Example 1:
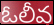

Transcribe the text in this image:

ఓలీవ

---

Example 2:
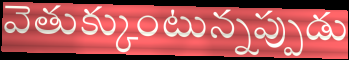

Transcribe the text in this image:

వెతుక్కుంటున్నప్పుడు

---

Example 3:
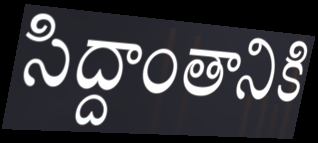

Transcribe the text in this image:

సిద్దాంతానికి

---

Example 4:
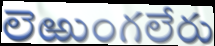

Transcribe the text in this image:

లెఱుంగలేరు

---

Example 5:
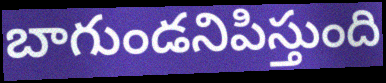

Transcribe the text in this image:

బాగుండనిపిస్తుంది